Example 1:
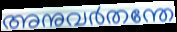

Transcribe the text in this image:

അനുവർതന്തേ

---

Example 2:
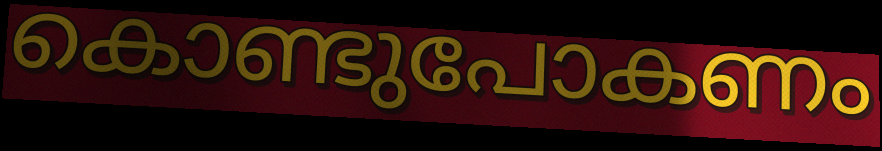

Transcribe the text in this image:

കൊണ്ടുപോകണം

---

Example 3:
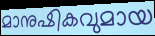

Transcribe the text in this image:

മാനുഷികവുമായ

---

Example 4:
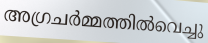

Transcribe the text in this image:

അഗ്രചർമ്മത്തിൽവെച്ചു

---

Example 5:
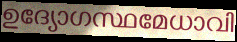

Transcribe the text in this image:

ഉദ്യോഗസ്ഥമേധാവി